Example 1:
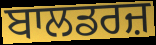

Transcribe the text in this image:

ਬਾਲਡਰਜ਼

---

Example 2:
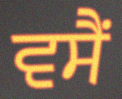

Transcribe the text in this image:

ਵਸੈਂ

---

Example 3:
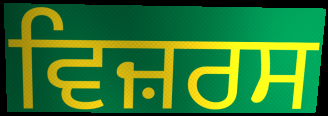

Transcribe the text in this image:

ਵਿਜ਼ਰਸ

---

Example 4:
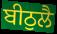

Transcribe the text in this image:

ਬੀਠੁਲੈ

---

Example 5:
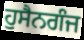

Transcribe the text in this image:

ਹੁਸੈਨਗੰਜ